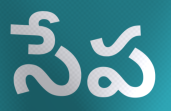
సేప